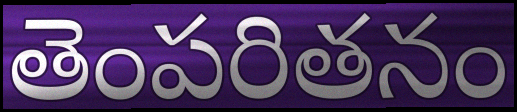
తెంపరితనం